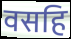
वसहि